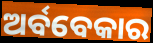
ଅର୍ବବେକାର